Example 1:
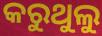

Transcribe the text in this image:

କରୁଥୁଲୁ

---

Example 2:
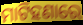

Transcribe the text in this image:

ମାଟିହଣାରେ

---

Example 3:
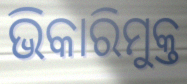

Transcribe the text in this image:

ଭିକାରିମୁକ୍ତ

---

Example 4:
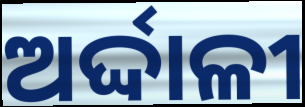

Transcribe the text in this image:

ଅର୍ଦ୍ଦାଳୀ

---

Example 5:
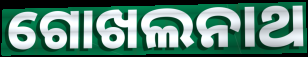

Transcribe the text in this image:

ଗୋଖଲନାଥ